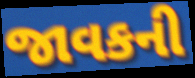
જાવકની